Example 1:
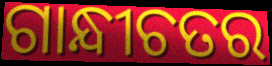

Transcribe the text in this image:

ଗାନ୍ଧୀଚତର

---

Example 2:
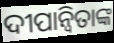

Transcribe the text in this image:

ଦୀପାନ୍ୱିତାଙ୍କ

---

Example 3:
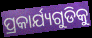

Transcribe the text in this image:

ପ୍ରକାର୍ଯ୍ୟଗୁଡିକୁ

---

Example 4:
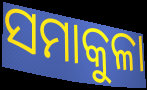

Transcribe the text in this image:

ସମାକୁଳା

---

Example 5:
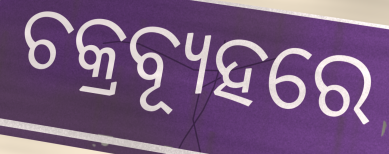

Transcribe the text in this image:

ଚକ୍ରବ୍ୟୂହରେ